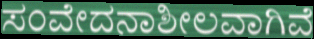
ಸಂವೇದನಾಶೀಲವಾಗಿವೆ